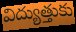
విద్యుత్తుకు